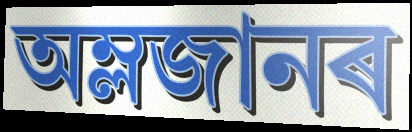
অম্লজানৰ